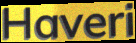
Haveri